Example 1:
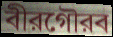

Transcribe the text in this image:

বীরগৌরব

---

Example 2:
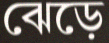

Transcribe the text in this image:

ঝেড়ে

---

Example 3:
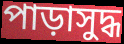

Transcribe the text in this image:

পাড়াসুদ্ধ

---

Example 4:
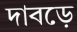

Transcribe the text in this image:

দাবড়ে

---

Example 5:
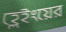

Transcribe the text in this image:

হ্লেইংয়ের